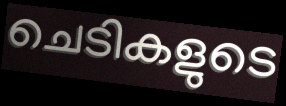
ചെടികളുടെ